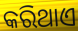
କରିଥାଏ